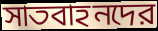
সাতবাহনদের